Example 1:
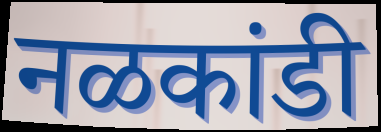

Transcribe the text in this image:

नळकांडी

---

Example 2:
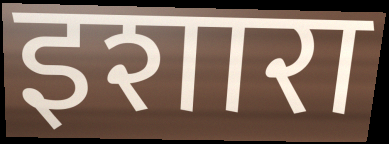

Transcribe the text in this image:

इशारा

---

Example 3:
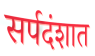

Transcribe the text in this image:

सर्पदंशात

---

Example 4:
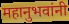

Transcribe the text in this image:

महानुभवांनी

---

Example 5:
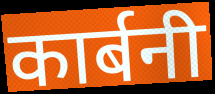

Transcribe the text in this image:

कार्बनी